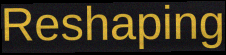
Reshaping